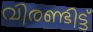
വിരണ്ടിട്ട്